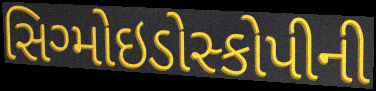
સિગ્મોઇડોસ્કોપીની